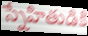
స్నేహితుడికి